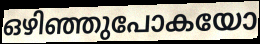
ഒഴിഞ്ഞുപോകയോ